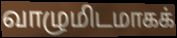
வாழுமிடமாகக்